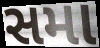
સમા